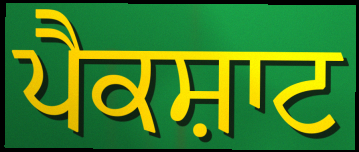
ਪੈਕਸ਼ਾਟ